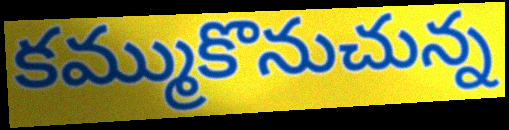
కమ్ముకొనుచున్న